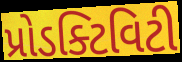
પ્રોડક્ટિવિટી